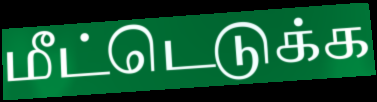
மீட்டெடுக்க